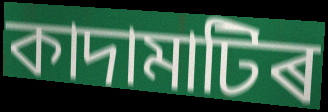
কাদামাটিৰ